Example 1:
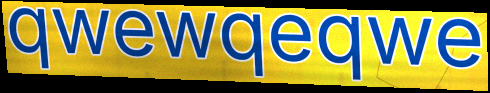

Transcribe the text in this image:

qwewqeqwe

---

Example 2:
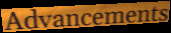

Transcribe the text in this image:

Advancements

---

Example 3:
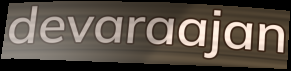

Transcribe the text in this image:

devaraajan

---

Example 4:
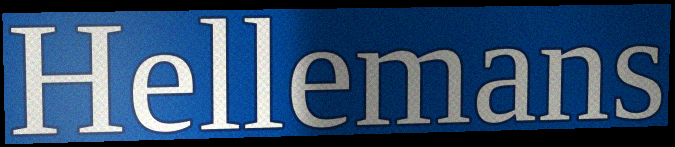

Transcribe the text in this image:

Hellemans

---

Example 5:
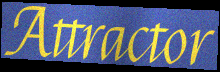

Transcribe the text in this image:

Attractor